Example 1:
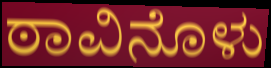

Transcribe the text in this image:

ಠಾವಿನೊಳು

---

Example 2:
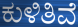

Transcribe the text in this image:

ಕುಳಿತಿವೆ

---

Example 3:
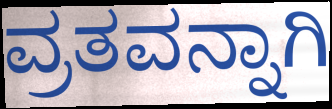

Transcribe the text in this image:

ವ್ರತವನ್ನಾಗಿ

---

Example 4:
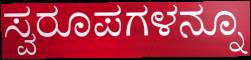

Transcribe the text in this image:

ಸ್ವರೂಪಗಳನ್ನೂ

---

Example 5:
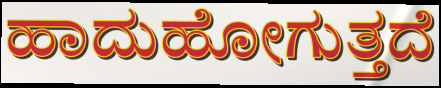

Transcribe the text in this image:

ಹಾದುಹೋಗುತ್ತದೆ